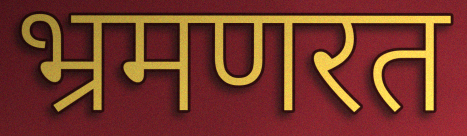
भ्रमणरत